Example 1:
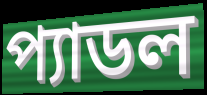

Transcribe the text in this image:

প্যাডল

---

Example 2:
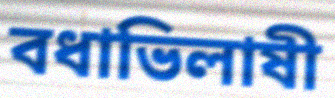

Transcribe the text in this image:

বধাভিলাষী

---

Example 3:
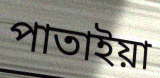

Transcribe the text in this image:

পাতাইয়া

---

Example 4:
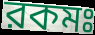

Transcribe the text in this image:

রকমঃ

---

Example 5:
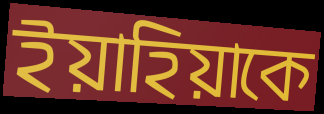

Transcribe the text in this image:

ইয়াহিয়াকে